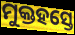
ମୁକ୍ତହସ୍ତେ